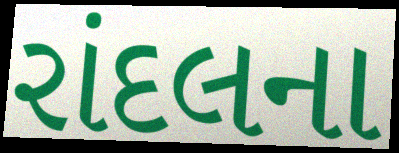
રાંદલના